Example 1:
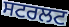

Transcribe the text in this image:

ਸਟਰਲਟ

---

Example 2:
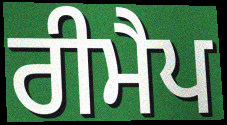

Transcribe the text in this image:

ਰੀਮੈਪ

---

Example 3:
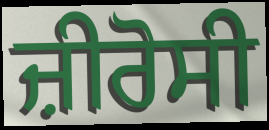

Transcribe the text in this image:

ਜ਼ੀਰੋਸੀ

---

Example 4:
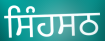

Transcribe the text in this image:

ਸਿੰਹਸਠ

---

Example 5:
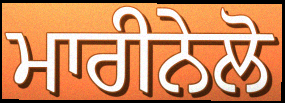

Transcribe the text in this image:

ਮਾਰੀਨੇਲੋ